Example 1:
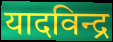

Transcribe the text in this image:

यादविन्द्र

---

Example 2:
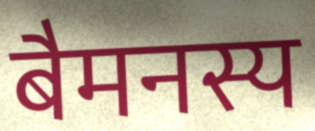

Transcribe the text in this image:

बैमनस्य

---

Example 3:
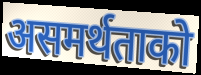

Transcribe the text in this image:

असमर्थताको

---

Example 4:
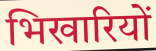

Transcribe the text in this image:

भिखारियों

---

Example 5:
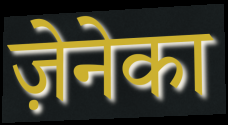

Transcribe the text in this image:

ज़ेनेका